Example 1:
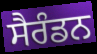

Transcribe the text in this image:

ਸੈਰੰਡਨ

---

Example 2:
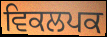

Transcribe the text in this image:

ਵਿਕਲਪਕ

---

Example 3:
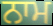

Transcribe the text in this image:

ਨਾਮ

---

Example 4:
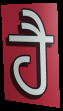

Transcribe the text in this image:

ਹੈ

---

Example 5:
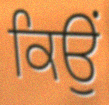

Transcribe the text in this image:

ਕਿਉਂ